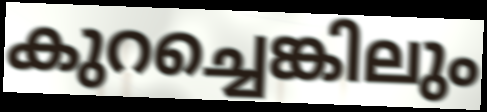
കുറച്ചെങ്കിലും